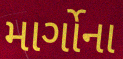
માર્ગોના